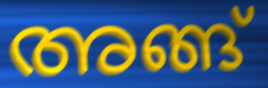
അങ്ങ്